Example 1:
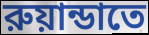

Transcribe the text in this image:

রুয়ান্ডাতে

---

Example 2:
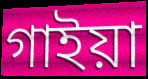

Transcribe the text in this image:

গাইয়া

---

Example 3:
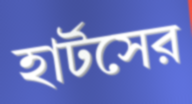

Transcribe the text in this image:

হার্টসের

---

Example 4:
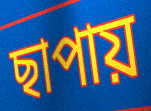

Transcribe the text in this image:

ছাপায়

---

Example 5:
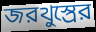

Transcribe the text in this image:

জরথুস্ত্রের